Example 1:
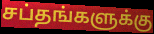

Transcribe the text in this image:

சப்தங்களுக்கு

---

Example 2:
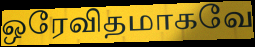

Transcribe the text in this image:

ஒரேவிதமாகவே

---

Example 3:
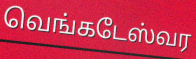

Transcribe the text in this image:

வெங்கடேஸ்வர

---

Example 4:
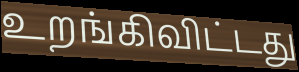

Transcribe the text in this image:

உறங்கிவிட்டது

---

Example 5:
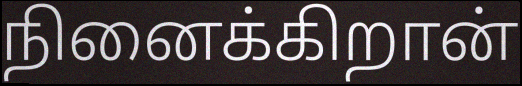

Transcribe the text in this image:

நினைக்கிறான்